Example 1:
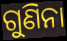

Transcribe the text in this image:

ଗୁଣିନା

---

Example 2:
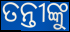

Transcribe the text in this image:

ତନ୍ତୀଙ୍କୁ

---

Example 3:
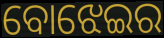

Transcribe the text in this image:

ବୋଝେଇର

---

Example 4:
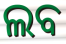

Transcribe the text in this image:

ଲବ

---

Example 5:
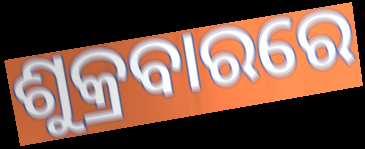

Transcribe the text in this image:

ଶୁକ୍ରବାରରେ